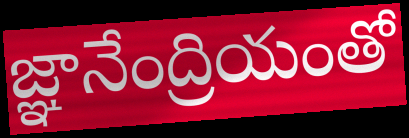
జ్ఞానేంద్రియంతో